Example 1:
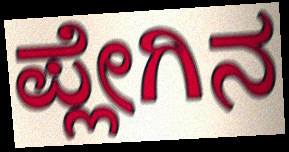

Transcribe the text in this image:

ಪ್ಲೇಗಿನ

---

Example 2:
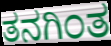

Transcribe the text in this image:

ತನಗಿಂತ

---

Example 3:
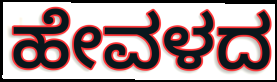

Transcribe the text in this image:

ಹೇವಳದ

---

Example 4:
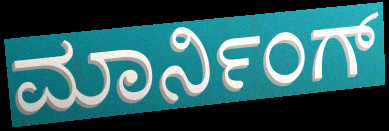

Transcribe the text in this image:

ಮಾರ್ನಿಂಗ್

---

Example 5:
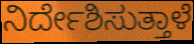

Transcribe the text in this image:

ನಿರ್ದೇಶಿಸುತ್ತಾಳೆ